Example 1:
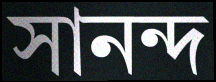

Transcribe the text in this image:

সানন্দ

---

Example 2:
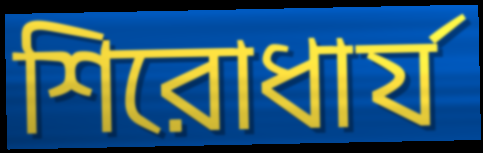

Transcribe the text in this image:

শিরোধার্য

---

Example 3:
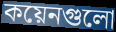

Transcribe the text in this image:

কয়েনগুলো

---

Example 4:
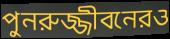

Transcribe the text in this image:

পুনরুজ্জীবনেরও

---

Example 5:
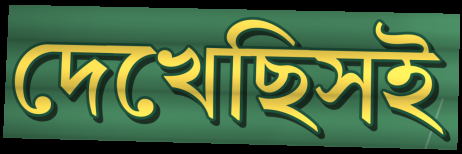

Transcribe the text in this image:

দেখেছিসই